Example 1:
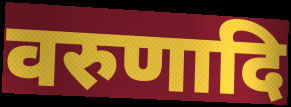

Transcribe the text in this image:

वरुणादि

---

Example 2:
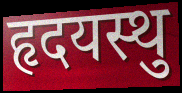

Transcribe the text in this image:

हृदयस्थु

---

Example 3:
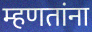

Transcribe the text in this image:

म्हणतांना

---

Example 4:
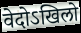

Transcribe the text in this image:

वेदोऽखिलो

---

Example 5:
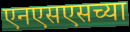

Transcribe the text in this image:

एनएसएसच्या